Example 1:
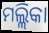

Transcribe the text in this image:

ମଲ୍ଲିକା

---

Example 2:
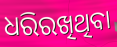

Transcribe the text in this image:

ଧରିରଖିଥିବା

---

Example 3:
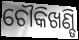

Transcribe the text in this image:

ଚୌକିଖଣ୍ଡି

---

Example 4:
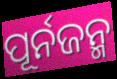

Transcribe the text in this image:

ପୂର୍ନଜନ୍ମ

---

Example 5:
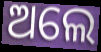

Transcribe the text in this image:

ଅଲେ